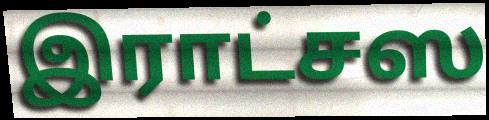
இராட்சஸ